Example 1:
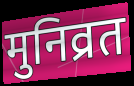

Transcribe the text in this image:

मुनिव्रत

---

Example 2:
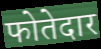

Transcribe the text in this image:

फोतेदार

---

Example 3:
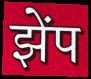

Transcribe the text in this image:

झेंप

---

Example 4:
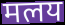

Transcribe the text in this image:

मलय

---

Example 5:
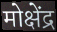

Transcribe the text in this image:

मोक्षेंद्र